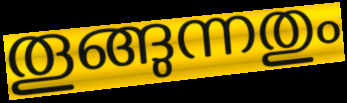
തൂങ്ങുന്നതും